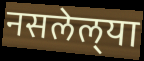
नसलेल्या